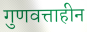
गुणवत्ताहीन